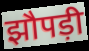
झौपड़ी